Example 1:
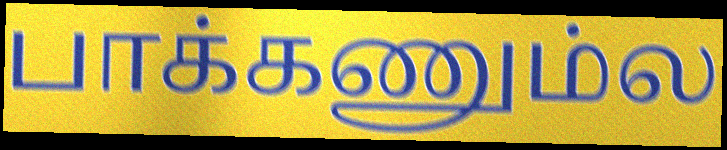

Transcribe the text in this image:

பாக்கணும்ல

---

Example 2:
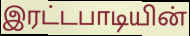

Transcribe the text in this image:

இரட்டபாடியின்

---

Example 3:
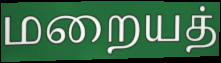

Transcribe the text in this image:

மறையத்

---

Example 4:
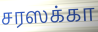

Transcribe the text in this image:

சரஸக்கா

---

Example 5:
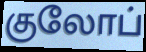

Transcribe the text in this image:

குலோப்